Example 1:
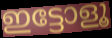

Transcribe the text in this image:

ഇട്ടോളൂ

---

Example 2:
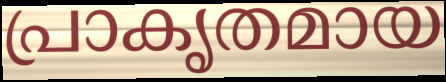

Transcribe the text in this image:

പ്രാകൃതമായ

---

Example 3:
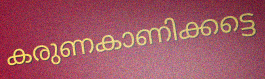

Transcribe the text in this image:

കരുണകാണിക്കട്ടെ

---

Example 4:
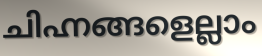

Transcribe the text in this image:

ചിഹ്നങ്ങളെല്ലാം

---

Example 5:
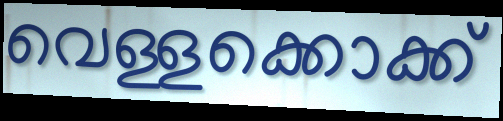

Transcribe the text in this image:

വെള്ളക്കൊക്ക്